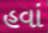
હવાં